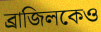
ব্রাজিলকেও